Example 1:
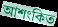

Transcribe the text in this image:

আশংকিত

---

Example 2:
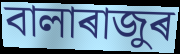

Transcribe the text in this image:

বালাৰাজুৰ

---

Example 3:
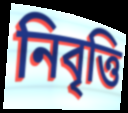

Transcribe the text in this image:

নিবৃত্তি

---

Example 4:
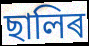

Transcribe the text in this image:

ছালিৰ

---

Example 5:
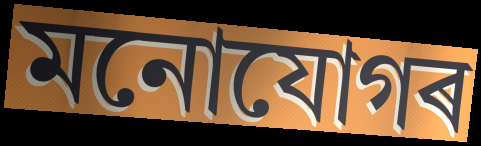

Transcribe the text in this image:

মনোযোগৰ